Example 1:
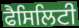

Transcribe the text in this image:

ਫੈਸਿਲਿਟੀ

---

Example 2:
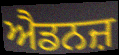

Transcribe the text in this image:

ਐਡਨਜ਼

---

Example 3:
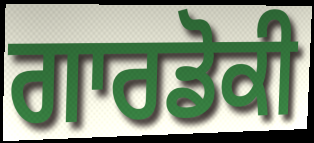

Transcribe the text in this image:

ਗਾਰਡੋਕੀ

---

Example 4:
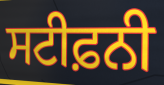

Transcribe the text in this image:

ਸਟੀਫ਼ਨੀ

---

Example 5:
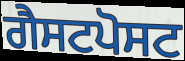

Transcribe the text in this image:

ਗੈਸਟਪੋਸਟ